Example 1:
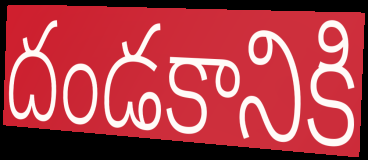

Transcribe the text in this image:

దండకానికి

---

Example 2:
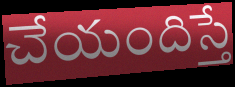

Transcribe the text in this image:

చేయందిస్తే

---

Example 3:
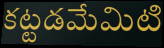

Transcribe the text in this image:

కట్టడమేమిటి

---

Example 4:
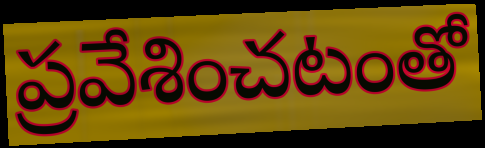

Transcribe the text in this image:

ప్రవేశించటంతో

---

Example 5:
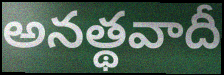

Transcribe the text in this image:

అనత్థవాదీ